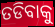
ତଡିବାକୁ